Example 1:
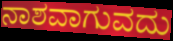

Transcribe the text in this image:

ನಾಶವಾಗುವದು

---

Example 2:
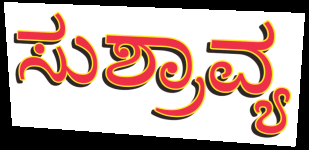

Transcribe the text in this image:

ಸುಶ್ರಾವ್ಯ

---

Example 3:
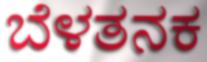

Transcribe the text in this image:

ಬೆಳತನಕ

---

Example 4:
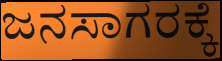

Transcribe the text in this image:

ಜನಸಾಗರಕ್ಕೆ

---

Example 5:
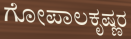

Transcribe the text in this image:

ಗೋಪಾಲಕೃಷ್ಣರ